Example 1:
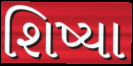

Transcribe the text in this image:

શિષ્યા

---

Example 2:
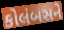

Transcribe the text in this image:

કોલંબસને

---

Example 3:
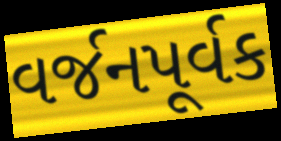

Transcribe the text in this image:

વર્જનપૂર્વક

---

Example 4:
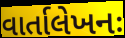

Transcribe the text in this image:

વાર્તાલેખનઃ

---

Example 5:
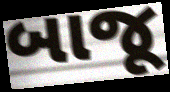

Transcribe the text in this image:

બાજૂ